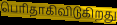
பெரிதாகிவிடுகிறது